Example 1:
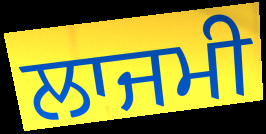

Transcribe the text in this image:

ਲਾਜਮੀ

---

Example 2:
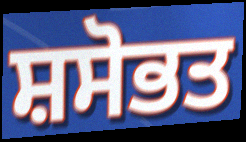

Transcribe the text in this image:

ਸ਼ਸੋਭਤ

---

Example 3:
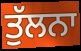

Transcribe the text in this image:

ਤੁੱਲਨਾ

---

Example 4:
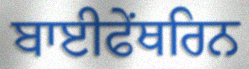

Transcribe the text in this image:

ਬਾਈਫੇਂਥਰਿਨ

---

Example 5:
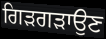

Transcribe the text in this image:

ਗਿੜਗੜਾਉਣ